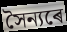
সৈন্যৰে